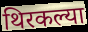
थिरकल्या